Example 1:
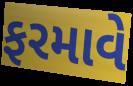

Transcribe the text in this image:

ફરમાવે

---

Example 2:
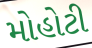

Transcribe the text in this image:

મોહોટી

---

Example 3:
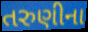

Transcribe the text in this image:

તરુણીના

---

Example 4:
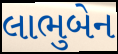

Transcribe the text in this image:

લાભુબેન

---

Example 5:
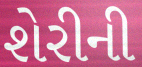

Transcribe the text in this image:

શેરીની